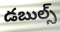
డబుల్స్